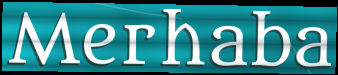
Merhaba